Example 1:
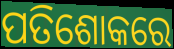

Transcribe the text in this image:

ପତିଶୋକରେ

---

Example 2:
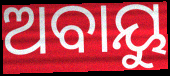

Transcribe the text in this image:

ଅବାୟୁ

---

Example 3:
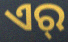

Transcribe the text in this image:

ଏର୍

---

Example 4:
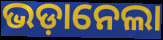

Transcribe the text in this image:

ଭଡ଼ାନେଲା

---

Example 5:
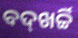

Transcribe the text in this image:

ବଦ୍‌ଖର୍ଚ୍ଚି